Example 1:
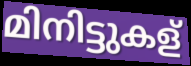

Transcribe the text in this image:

മിനിട്ടുകള്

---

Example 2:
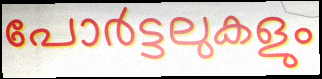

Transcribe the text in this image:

പോർട്ടലുകളും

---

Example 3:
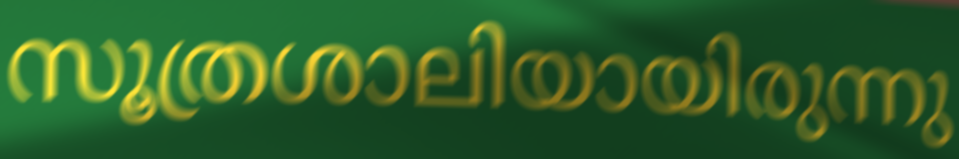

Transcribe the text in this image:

സൂത്രശാലിയായിരുന്നു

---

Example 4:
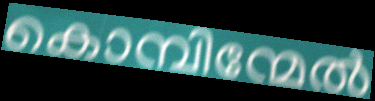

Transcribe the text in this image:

കൊമ്പിന്മേൽ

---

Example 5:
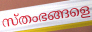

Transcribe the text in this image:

സ്തംഭങ്ങളെ